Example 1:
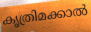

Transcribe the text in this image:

കൃത്രിമക്കാൽ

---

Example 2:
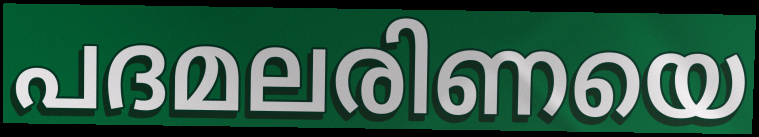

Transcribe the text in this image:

പദമലരിണയെ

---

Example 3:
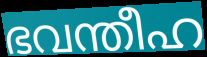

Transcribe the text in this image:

ഭവന്തീഹ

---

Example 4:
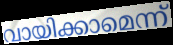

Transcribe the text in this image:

വായിക്കാമെന്ന്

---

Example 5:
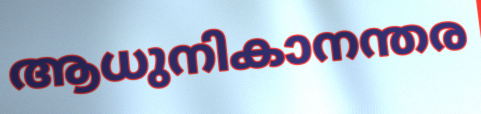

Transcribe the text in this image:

ആധുനികാനന്തര